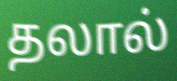
தலால்